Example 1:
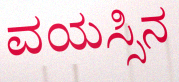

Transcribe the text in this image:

ವಯಸ್ಸಿನ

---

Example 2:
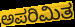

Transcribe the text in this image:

ಅಪರಿಮಿತ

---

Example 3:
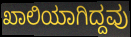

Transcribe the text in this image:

ಖಾಲಿಯಾಗಿದ್ದವು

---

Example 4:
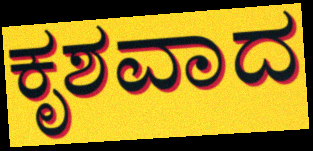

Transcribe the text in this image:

ಕೃಶವಾದ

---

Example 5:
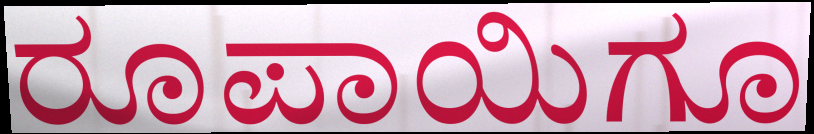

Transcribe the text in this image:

ರೂಪಾಯಿಗೂ